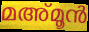
മഅ്മൂൻ